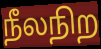
நீலநிற